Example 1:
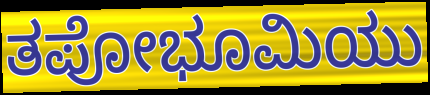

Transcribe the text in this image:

ತಪೋಭೂಮಿಯು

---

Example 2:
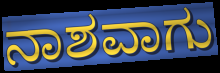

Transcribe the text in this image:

ನಾಶವಾಗು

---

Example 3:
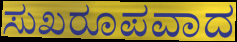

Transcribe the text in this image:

ಸುಖರೂಪವಾದ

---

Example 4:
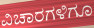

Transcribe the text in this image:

ವಿಚಾರಗಳಿಗೂ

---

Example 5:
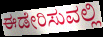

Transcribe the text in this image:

ಈಡೇರಿಸುವಲ್ಲಿ